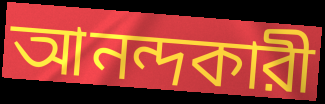
আনন্দকারী